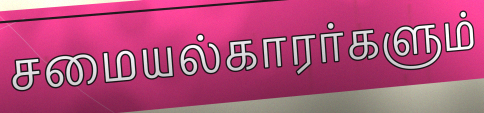
சமையல்காரர்களும்